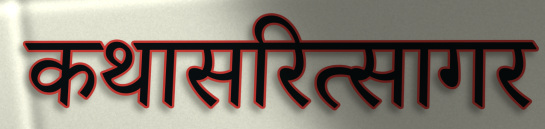
कथासरित्सागर